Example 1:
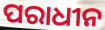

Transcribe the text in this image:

ପରାଧୀନ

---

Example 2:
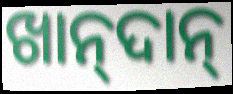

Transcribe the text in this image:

ଖାନ୍‍ଦାନ୍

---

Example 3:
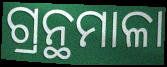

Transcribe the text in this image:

ଗ୍ରନ୍ଥମାଳା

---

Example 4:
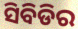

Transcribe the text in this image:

ସିବିଡିର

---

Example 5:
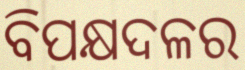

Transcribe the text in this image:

ବିପକ୍ଷଦଳର